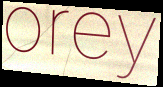
orey